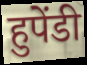
हुपेंडी